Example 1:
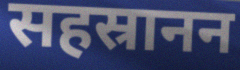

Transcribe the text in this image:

सहस्रानन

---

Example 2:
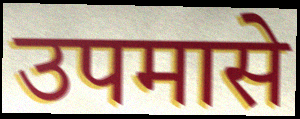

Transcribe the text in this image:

उपमासे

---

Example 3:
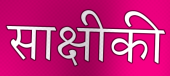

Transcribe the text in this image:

साक्षीकी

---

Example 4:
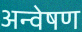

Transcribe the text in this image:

अन्वेषण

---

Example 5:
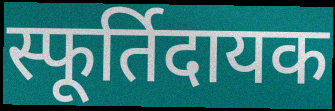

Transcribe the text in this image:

स्फूर्तिदायक